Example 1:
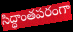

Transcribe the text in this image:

సిద్ధాంతపరంగా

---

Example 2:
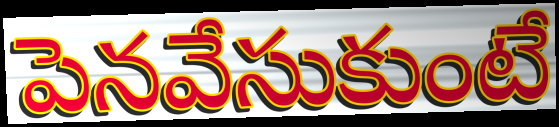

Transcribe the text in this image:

పెనవేసుకుంటే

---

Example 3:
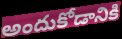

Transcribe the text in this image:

అందుకోడానికి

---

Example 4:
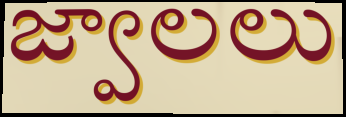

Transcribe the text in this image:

జ్వాలలు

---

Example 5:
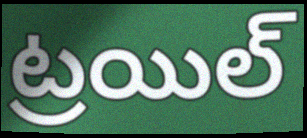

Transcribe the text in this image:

ట్రయిల్